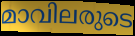
മാവിലരുടെ